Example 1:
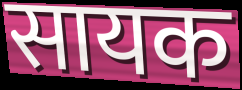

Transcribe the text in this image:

सायक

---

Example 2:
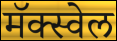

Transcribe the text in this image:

मॅक्स्वेल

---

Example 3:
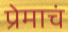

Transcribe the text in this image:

प्रेमाचं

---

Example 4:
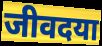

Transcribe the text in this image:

जीवदया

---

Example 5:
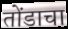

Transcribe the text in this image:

तोंडाचा